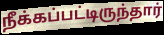
நீக்கப்பட்டிருந்தார்